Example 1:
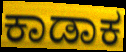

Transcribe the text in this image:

ಕಾಡಾಕ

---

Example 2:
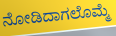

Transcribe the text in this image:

ನೋಡಿದಾಗಲೊಮ್ಮೆ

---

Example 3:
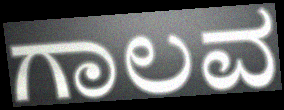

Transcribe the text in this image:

ಗಾಲವ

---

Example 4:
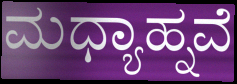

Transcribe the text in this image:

ಮಧ್ಯಾಹ್ನವೆ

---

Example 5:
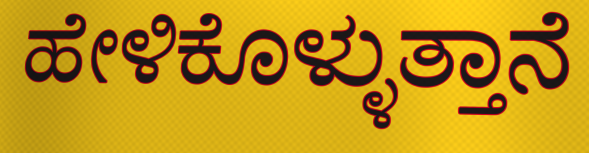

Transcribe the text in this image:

ಹೇಳಿಕೊಳ್ಳುತ್ತಾನೆ